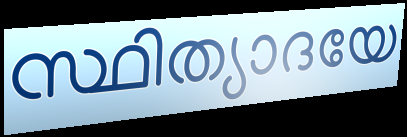
സ്ഥിത്യാദയേ